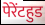
पेरेंटहुड